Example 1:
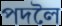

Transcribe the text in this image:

পদলৈ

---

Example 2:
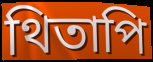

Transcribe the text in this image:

থিতাপি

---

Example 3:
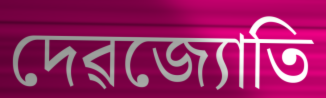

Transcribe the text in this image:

দেৱজ্যোতি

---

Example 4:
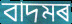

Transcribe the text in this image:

বাদমৰ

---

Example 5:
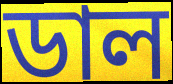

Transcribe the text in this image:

ডাল